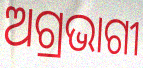
ଅଗ୍ରଭାଗୀ